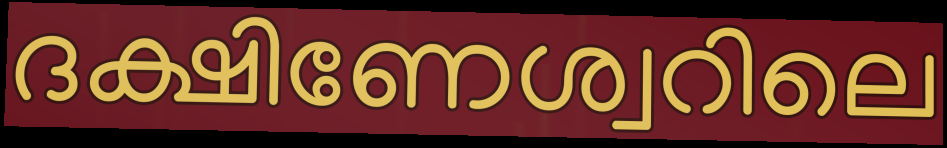
ദക്ഷിണേശ്വറിലെ